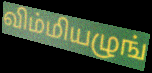
விம்மியழுங்